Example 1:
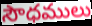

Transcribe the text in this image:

సౌధములు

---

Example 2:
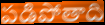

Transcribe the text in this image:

పడిపోతాది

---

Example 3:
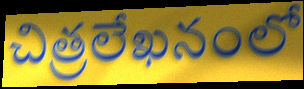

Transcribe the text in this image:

చిత్రలేఖనంలో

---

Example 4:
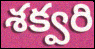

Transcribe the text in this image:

శక్వరి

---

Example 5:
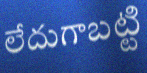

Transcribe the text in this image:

లేదుగాబట్టి